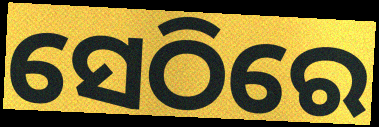
ସେଠିରେ